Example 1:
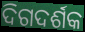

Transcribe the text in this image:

ଦିଗଦର୍ଶକ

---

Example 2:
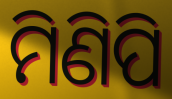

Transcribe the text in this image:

ମିଣିପି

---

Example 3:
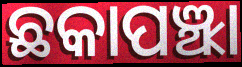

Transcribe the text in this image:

ଛକାପଞ୍ଝା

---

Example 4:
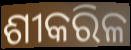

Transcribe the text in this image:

ଶୀକରିଳ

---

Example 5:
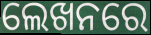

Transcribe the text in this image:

ଲେଖନରେ